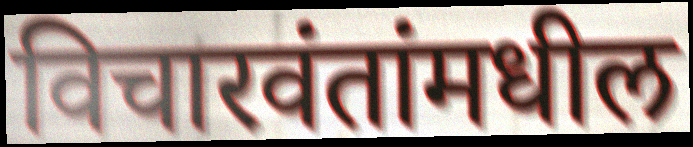
विचारवंतांमधील